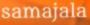
samajala